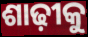
ଶାଢ଼ୀକୁ